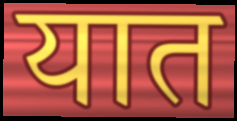
यात